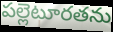
పల్లెటూరతను